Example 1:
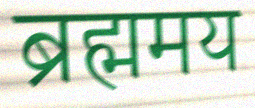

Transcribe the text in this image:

ब्रह्ममय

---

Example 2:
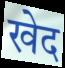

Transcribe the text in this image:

खेद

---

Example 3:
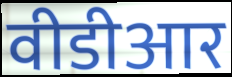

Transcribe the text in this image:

वीडीआर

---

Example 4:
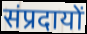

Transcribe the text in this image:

संप्रदायों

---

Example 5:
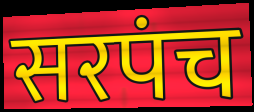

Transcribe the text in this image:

सरपंच